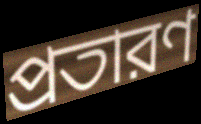
প্রতারণ